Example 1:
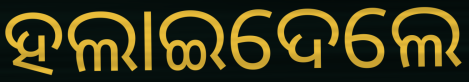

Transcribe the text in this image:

ହଲାଇଦେଲେ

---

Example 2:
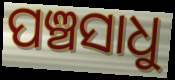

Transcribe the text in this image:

ପଞ୍ଚସାଧୁ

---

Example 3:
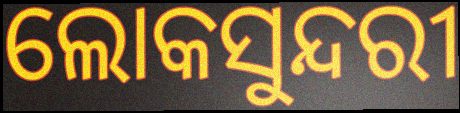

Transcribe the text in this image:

ଲୋକସୁନ୍ଦରୀ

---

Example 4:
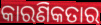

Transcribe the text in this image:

କାରଣିକତାର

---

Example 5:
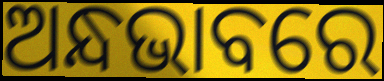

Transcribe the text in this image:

ଅନ୍ଧଭାବରେ